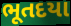
ભૂતદયા